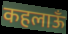
कहलाऊँ